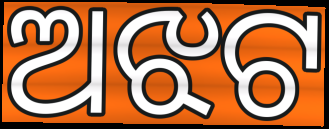
ଅଝଟ